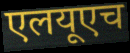
एलयूएच